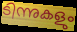
ടിന്നുകളും